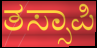
ತಸ್ಸಾಪಿ